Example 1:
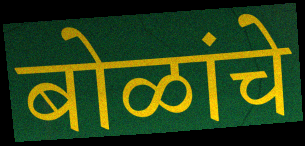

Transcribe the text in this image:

बोळांचे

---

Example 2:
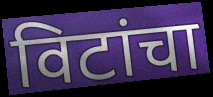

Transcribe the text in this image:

विटांचा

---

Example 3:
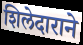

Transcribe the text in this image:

शिलेदाराने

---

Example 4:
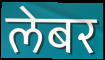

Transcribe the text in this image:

लेबर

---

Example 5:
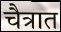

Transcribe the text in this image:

चैत्रात